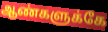
ஆண்களுக்கே